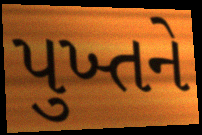
પુખ્તને